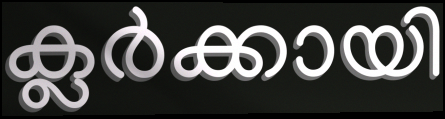
ക്ലർക്കായി